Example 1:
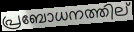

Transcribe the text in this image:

പ്രബോധനത്തില്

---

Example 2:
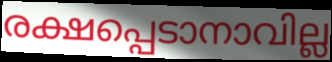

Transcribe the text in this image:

രക്ഷപ്പെടാനാവില്ല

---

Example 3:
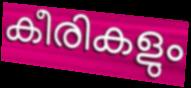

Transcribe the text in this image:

കീരികളും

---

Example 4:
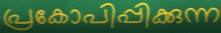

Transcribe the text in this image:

പ്രകോപിപ്പിക്കുന്ന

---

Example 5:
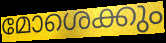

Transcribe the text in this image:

മോശെക്കും